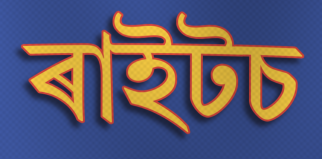
ৰাইটচ